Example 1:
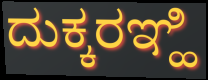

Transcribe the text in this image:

ದುಕ್ಕರಞ್ಹಿ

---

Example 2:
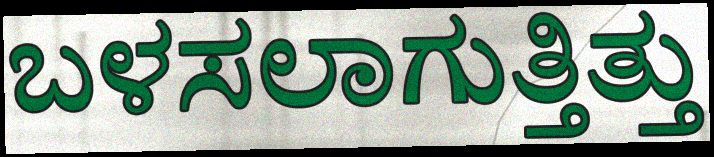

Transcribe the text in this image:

ಬಳಸಲಾಗುತ್ತಿತ್ತು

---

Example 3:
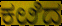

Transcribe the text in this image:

ಕೞಿದ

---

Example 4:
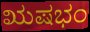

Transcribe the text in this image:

ಋಷಭಂ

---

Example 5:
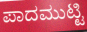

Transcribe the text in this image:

ಪಾದಮುಟ್ಟಿ